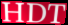
HDT